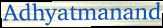
Adhyatmanand